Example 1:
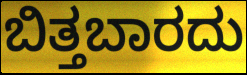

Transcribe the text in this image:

ಬಿತ್ತಬಾರದು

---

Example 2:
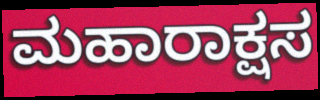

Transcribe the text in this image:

ಮಹಾರಾಕ್ಷಸ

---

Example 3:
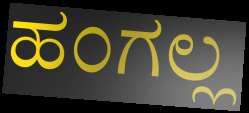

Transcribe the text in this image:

ಹಂಗಲ್ಲ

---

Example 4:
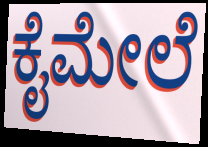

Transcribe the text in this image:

ಕೈಮೇಲೆ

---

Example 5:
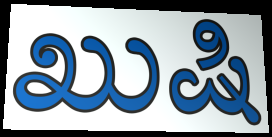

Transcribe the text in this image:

ಖುಷಿ